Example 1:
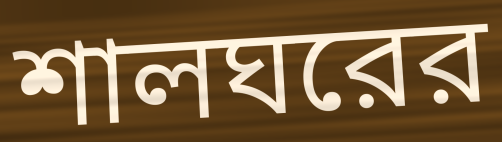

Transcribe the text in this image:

শালঘরের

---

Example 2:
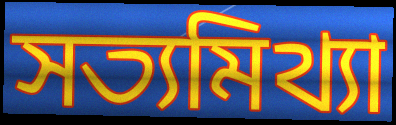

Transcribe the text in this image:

সত্যমিথ্যা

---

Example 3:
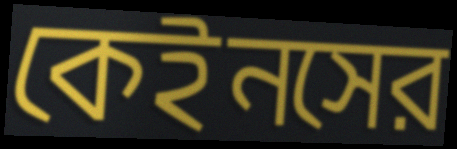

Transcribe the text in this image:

কেইনসের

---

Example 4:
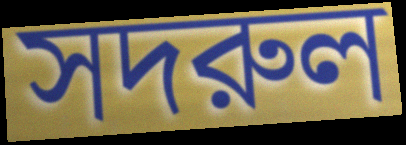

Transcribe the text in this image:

সদরুল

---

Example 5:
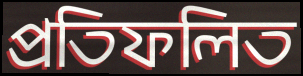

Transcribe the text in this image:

প্রতিফলিত